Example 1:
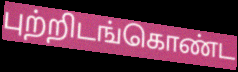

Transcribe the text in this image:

புற்றிடங்கொண்ட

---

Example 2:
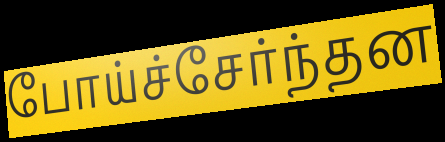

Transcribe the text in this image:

போய்ச்சேர்ந்தன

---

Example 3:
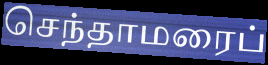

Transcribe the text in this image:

செந்தாமரைப்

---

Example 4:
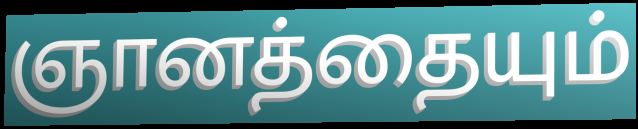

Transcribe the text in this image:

ஞானத்தையும்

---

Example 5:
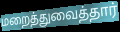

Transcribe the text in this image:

மறைத்துவைத்தார்